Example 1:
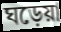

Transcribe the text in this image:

ঘড়েয়া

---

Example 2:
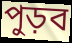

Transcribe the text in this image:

পুড়ব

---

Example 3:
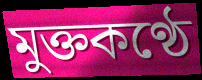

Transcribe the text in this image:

মুক্তকণ্ঠে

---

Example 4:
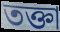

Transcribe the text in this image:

তক্তা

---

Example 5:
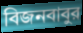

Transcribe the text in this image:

বিজনবাবুর